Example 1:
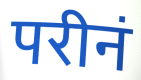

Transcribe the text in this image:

परीनं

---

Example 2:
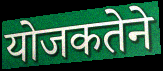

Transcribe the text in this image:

योजकतेने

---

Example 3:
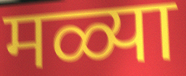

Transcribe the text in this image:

मळ्या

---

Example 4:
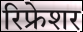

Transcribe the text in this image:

रिफ्रेशर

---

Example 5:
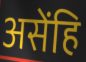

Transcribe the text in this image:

असेंहि